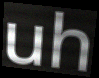
uh